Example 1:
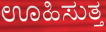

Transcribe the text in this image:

ಊಹಿಸುತ್ತ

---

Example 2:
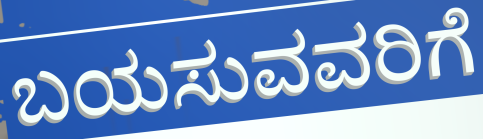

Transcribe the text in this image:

ಬಯಸುವವರಿಗೆ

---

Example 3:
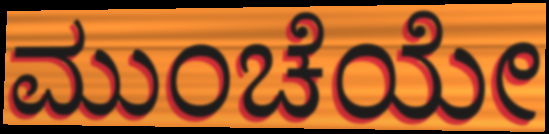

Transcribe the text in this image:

ಮುಂಚೆಯೇ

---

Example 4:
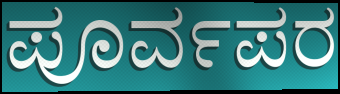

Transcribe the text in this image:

ಪೂರ್ವಪರ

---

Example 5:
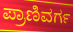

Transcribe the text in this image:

ಪ್ರಾಣಿವರ್ಗ